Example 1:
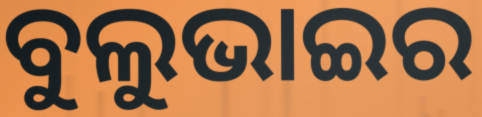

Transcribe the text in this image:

ବୁଲୁଭାଇର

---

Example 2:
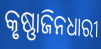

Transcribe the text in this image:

କୃଷ୍ଣାଜିନଧାରୀ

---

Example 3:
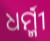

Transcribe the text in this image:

ଧର୍ମ୍ମୀ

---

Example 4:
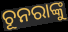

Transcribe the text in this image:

ଚୂନରାଙ୍କୁ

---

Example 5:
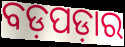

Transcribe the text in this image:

ବଡ଼ପଡ଼ାର